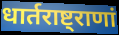
धार्तराष्ट्राणां